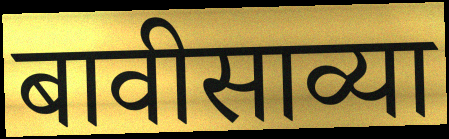
बावीसाव्या